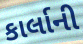
કાર્લાની